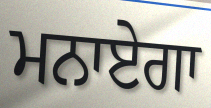
ਮਨਾਏਗਾ